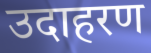
उदाहरण